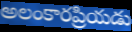
అలంకారప్రియడు